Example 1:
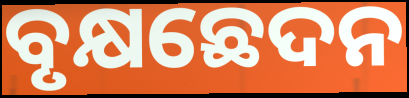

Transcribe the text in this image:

ବୃକ୍ଷଛେଦନ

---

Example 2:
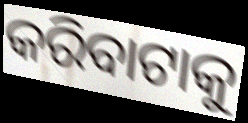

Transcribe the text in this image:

କରିବାଟାକୁ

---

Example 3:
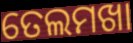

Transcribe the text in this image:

ତେଲମଖା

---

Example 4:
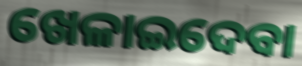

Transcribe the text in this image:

ଖେଳାଇଦେବା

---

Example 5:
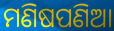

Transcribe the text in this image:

ମଣିଷପଣିଆ